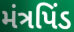
મંત્રપિંડ